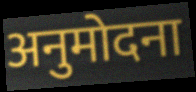
अनुमोदना